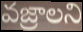
వజ్రాలని